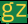
gz